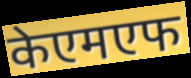
केएमएफ